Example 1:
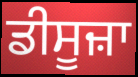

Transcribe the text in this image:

ਡੀਸੂਜ਼ਾ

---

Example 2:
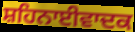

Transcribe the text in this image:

ਸ਼ਹਿਨਾਈਵਾਦਕ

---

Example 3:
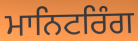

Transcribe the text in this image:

ਮਾਨਿਟਰਿੰਗ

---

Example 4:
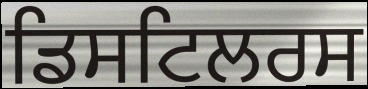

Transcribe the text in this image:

ਡਿਸਟਿਲਰਸ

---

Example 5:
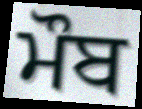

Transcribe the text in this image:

ਮੌਬ